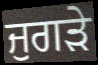
ਜੁਗੜੇ